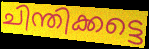
ചിന്തിക്കട്ടെ